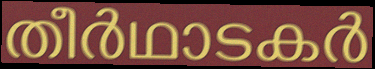
തീർഥാടകർ